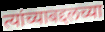
त्यांच्याबद्दलच्या